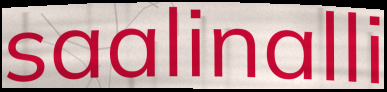
saalinalli